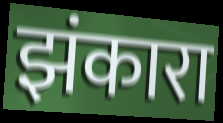
झंकारा